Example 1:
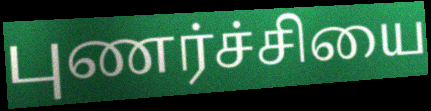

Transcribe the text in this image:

புணர்ச்சியை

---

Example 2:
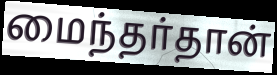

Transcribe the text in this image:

மைந்தர்தான்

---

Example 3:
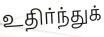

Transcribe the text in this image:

உதிர்ந்துக்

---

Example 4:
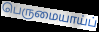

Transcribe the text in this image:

பெருமையாய்ப்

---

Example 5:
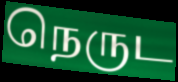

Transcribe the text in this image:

நெருட